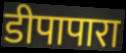
डीपापारा